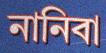
নানিবা